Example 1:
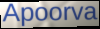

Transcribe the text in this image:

Apoorva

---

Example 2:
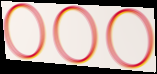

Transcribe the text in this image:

ooo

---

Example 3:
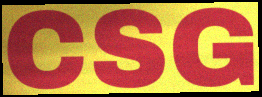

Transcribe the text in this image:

CSG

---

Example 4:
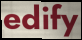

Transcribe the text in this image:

edify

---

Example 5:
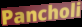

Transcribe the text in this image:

Pancholi